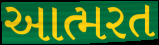
આત્મરત